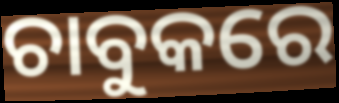
ଚାବୁକରେ